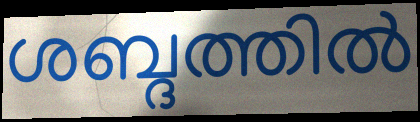
ശബ്ദത്തിൽ